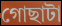
গোছাটা